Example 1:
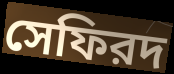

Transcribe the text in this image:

সেফিরদ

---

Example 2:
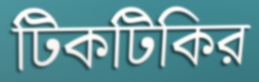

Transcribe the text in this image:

টিকটিকির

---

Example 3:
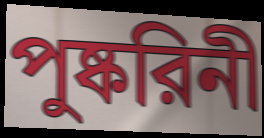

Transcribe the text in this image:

পুষ্করিনী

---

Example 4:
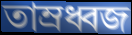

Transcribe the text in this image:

তাম্রধ্বজ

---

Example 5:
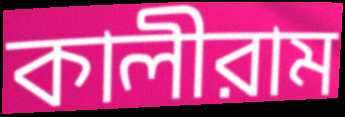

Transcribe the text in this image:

কালীরাম